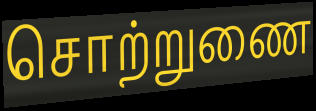
சொற்றுணை